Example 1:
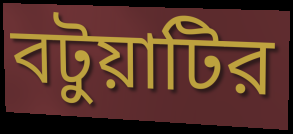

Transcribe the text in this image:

বটুয়াটির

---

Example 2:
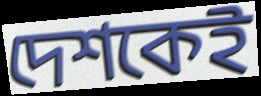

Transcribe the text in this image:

দেশকেই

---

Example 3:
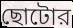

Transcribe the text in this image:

ছোটোর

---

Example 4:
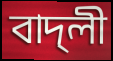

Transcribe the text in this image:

বাদ্‌লী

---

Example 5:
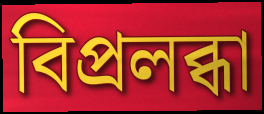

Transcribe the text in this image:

বিপ্রলব্ধা